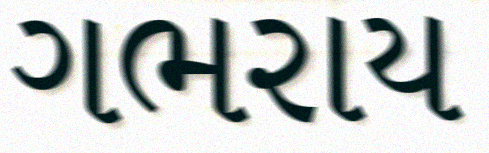
ગભરાય